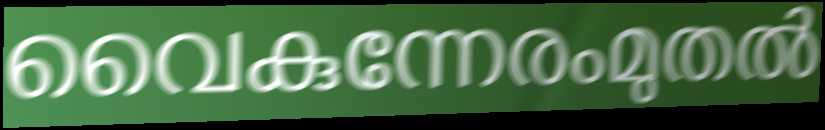
വൈകുന്നേരംമുതൽ